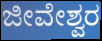
ಜೀವೇಶ್ವರ